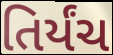
તિર્યંચ